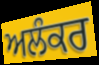
ਅਲੰਕਰ